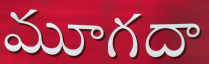
మూగదా